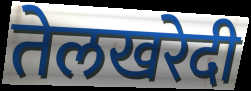
तेलखरेदी